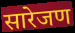
सारेजण